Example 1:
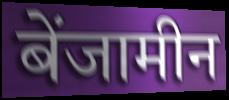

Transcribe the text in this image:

बेंजामीन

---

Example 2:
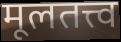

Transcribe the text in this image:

मूलतत्त्व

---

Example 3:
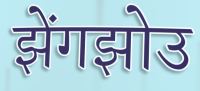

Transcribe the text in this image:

झेंगझोउ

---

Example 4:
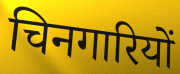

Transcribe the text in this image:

चिनगारियों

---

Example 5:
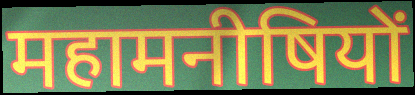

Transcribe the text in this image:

महामनीषियों